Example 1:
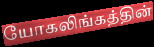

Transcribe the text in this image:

யோகலிங்கத்தின்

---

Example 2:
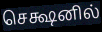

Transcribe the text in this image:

செக்ஷனில்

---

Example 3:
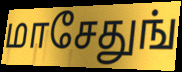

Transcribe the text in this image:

மாசேதுங்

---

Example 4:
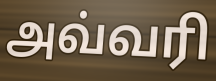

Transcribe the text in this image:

அவ்வரி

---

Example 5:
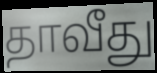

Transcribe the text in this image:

தாவீது